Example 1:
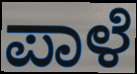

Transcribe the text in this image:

ಪಾಳೆ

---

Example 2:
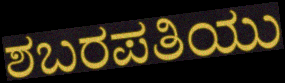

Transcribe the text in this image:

ಶಬರಪತಿಯು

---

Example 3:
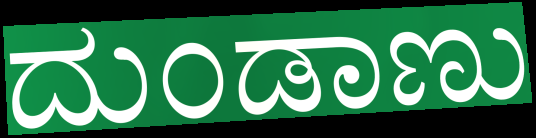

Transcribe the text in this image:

ದುಂಡಾಣು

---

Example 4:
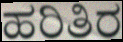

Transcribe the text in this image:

ಹರಿತಿರ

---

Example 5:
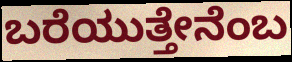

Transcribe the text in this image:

ಬರೆಯುತ್ತೇನೆಂಬ